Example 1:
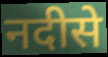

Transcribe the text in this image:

नदीसे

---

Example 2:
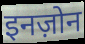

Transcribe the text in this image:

इनज़ोन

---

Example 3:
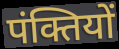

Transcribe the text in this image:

पंक्तियों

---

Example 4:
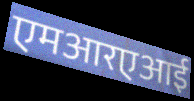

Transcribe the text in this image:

एमआरएआई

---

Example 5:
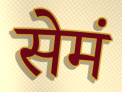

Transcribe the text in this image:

सेमं